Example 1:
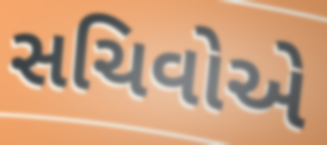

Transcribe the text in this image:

સચિવોએ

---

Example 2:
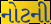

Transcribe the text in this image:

નોટની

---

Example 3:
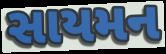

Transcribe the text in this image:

સાયમન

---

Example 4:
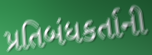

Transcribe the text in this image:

પ્રતિબંધકર્તાની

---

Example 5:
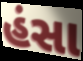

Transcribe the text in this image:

હંસા